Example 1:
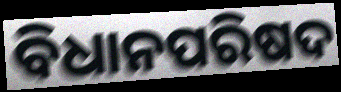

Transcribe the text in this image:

ବିଧାନପରିଷଦ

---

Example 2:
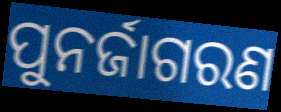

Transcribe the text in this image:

ପୁନର୍ଜାଗରଣ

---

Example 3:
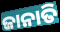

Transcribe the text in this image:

ଜାନାତି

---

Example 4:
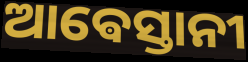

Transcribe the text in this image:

ଆଵେସ୍ତାନୀ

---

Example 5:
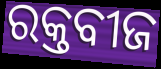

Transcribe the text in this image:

ରକ୍ତବୀଜ